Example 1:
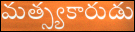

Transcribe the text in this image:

మత్స్యకారుడు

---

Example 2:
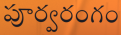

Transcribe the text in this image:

పూర్వరంగం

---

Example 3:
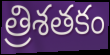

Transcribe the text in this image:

త్రిశతకం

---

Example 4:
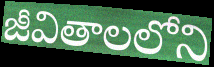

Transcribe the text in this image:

జీవితాలలోని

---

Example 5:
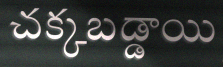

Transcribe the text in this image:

చక్కబడ్డాయి